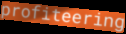
profiteering